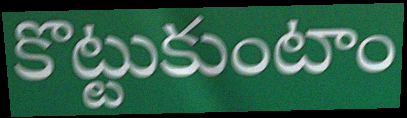
కొట్టుకుంటాం